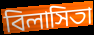
বিলাসিতা